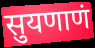
सुयणाणं